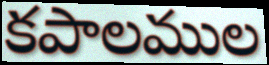
కపాలముల